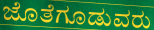
ಜೊತೆಗೂಡುವರು